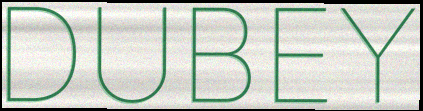
DUBEY